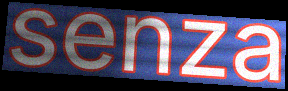
senza